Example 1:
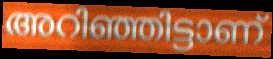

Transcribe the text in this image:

അറിഞ്ഞിട്ടാണ്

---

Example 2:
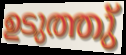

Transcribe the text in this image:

ഉടുത്തു്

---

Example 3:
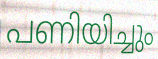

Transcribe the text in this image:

പണിയിച്ചും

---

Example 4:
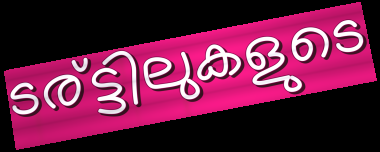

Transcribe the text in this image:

ടര്ട്ടിലുകളുടെ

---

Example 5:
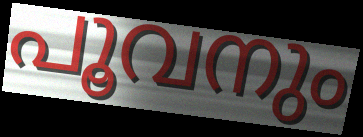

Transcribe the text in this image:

പൂവനും